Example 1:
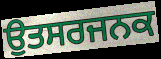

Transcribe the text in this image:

ਉਤਸਰਜਨਕ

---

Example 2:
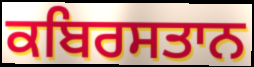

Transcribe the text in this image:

ਕਬਿਰਸਤਾਨ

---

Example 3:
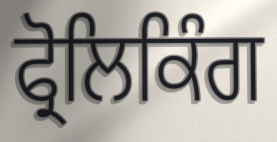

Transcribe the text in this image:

ਫ੍ਰੋਲਿਕਿੰਗ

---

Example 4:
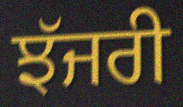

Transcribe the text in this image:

ਝੱਜਰੀ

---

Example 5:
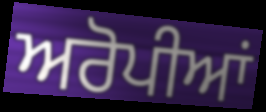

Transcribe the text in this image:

ਅਰੋਪੀਆਂ